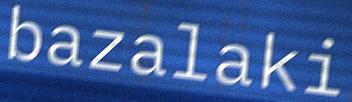
bazalaki